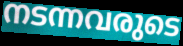
നടന്നവരുടെ